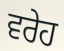
ਵਰੇਹ